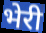
भेरी